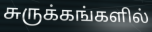
சுருக்கங்களில்